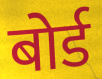
बोर्ड